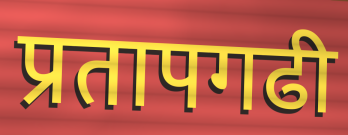
प्रतापगढी